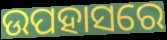
ଉପହାସରେ